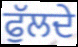
ਫੁੱਲਦੇ